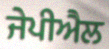
ਜੇਪੀਐਲ